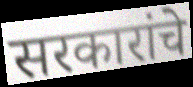
सरकारांचे